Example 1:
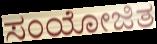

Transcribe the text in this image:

ಸಂಯೋಜಿತ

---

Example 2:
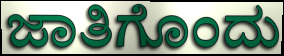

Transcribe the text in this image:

ಜಾತಿಗೊಂದು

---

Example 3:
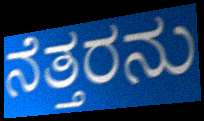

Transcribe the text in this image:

ನೆತ್ತರನು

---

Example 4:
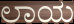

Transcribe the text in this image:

ಲಾಯ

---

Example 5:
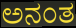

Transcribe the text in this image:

ಅನಂತ